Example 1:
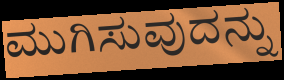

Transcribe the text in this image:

ಮುಗಿಸುವುದನ್ನು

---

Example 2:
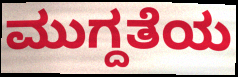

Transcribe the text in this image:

ಮುಗ್ದತೆಯ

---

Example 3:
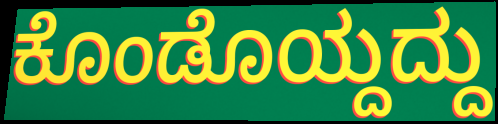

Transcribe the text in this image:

ಕೊಂಡೊಯ್ದದ್ದು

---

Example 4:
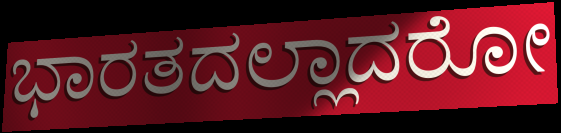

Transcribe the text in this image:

ಭಾರತದಲ್ಲಾದರೋ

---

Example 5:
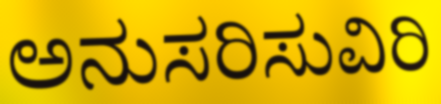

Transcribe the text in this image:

ಅನುಸರಿಸುವಿರಿ